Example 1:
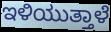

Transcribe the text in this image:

ಇಳಿಯುತ್ತಾಳೆ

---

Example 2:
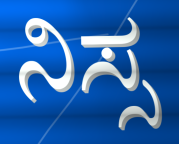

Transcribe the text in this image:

ನಿಸ್ಸ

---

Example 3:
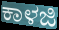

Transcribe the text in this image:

ಕಾಳಜಿ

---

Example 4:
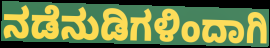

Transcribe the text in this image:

ನಡೆನುಡಿಗಳಿಂದಾಗಿ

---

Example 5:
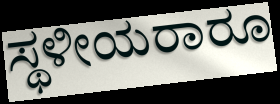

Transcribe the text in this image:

ಸ್ಥಳೀಯರಾರೂ